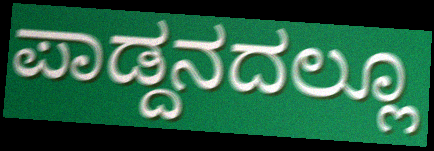
ಪಾಡ್ದನದಲ್ಲೂ